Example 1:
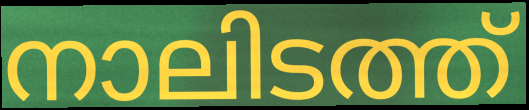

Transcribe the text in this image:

നാലിടത്ത്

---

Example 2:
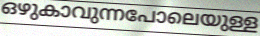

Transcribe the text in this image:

ഒഴുകാവുന്നപോലെയുള്ള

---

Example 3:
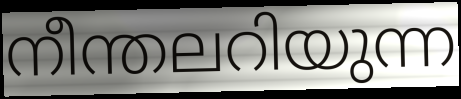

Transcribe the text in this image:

നീന്തലറിയുന്ന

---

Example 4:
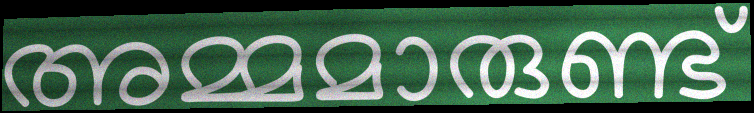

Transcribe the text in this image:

അമ്മമാരുണ്ട്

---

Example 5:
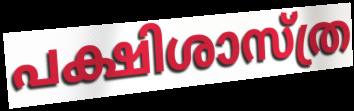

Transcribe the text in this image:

പക്ഷിശാസ്ത്ര